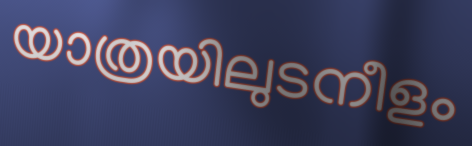
യാത്രയിലുടനീളം